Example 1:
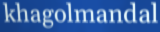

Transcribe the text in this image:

khagolmandal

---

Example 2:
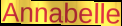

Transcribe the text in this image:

Annabelle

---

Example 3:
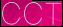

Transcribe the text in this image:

CCT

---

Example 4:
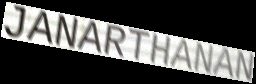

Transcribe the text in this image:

JANARTHANAN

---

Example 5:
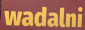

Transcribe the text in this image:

wadalni